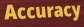
Accuracy